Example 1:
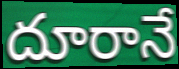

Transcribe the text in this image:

దూరానే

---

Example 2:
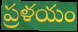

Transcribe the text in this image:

ప్రళయం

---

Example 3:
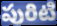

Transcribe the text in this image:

పురిటి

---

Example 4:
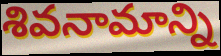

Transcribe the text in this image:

శివనామాన్ని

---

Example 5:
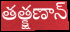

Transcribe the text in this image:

తత్క్షణాన్